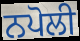
ਨਪੋਲੀ